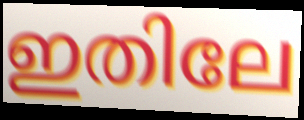
ഇതിലേ